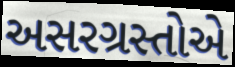
અસરગ્રસ્તોએ